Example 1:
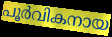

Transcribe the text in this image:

പൂർവികനായ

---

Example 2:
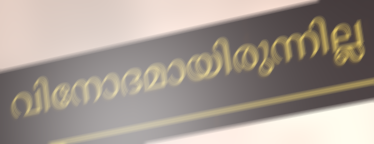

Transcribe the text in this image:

വിനോദമായിരുന്നില്ല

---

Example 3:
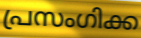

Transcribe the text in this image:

പ്രസംഗിക്ക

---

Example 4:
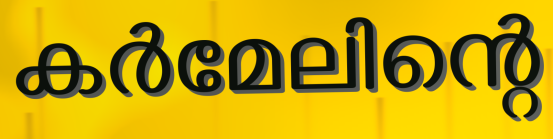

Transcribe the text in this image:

കർമേലിന്റെ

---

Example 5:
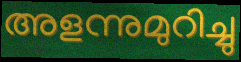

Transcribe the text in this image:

അളന്നുമുറിച്ചു